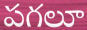
పగలూ